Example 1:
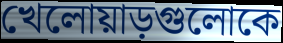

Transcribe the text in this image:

খেলোয়াড়গুলোকে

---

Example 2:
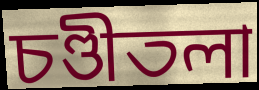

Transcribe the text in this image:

চণ্ডীতলা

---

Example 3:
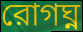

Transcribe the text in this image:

রোগঘ্ন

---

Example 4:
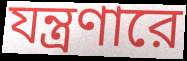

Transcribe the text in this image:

যন্ত্রণারে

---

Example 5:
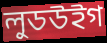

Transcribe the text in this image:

লুডউইগ